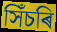
সিঁচৰি